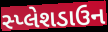
સ્પ્લેશડાઉન